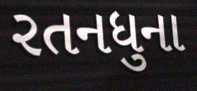
રતનધુના